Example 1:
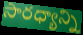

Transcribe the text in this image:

సారధ్యాన్ని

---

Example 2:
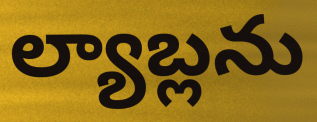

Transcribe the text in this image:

ల్యాబ్లను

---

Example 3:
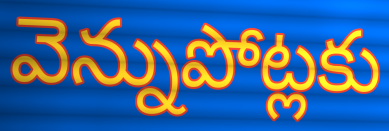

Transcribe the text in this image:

వెన్నుపోట్లకు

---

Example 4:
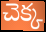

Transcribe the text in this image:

చెక్క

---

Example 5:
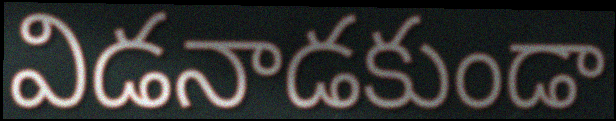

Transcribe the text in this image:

విడనాడకుండా